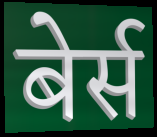
बेर्स